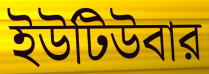
ইউটিউবার